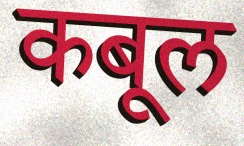
कबूल